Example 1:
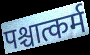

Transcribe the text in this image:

पश्चात्कर्म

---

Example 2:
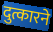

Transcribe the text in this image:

दुत्कारने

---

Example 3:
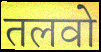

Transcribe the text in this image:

तलवो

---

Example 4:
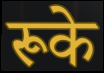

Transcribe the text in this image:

रूके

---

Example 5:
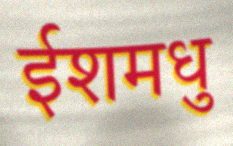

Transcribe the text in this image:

ईशमधु